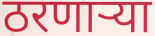
ठरणाऱ्या